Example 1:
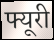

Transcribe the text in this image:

फ्यूरी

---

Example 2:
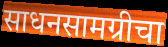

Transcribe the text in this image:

साधनसामग्रीचा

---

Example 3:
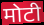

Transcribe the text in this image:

मोटी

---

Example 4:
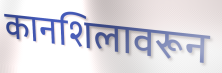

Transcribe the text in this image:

कानशिलावरून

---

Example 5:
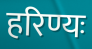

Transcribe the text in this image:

हरिण्यः